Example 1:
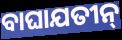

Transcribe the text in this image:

ବାଘାଯତୀନ୍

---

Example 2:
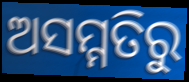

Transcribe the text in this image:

ଅସମ୍ମତିରୁ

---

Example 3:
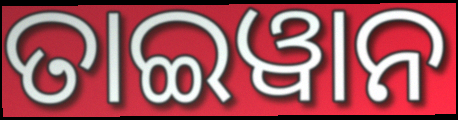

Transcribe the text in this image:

ତାଇୱାନ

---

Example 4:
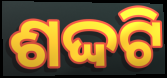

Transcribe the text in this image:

ଶଦ୍ଦଟି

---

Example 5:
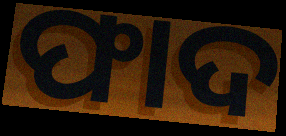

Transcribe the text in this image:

ଫାଦ